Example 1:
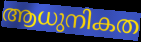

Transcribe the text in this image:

ആധുനികത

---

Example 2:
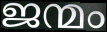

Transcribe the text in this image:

ജന്മം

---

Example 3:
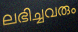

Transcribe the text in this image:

ലഭിച്ചവരും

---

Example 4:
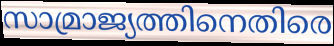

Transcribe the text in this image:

സാമ്രാജ്യത്തിനെതിരെ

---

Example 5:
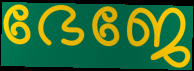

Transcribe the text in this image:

ഭേജേ